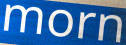
morn